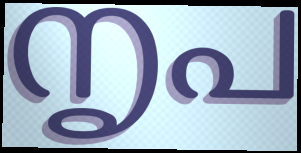
നൃപ